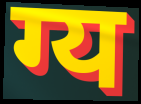
ग्य